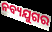
ନବ୍ୟଯୁଗର